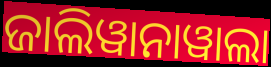
ଜାଲିୱାନାୱାଲା